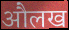
औलख